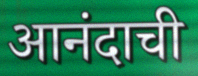
आनंदाची